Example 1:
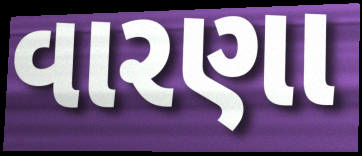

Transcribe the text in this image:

વારણા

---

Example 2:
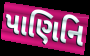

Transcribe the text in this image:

પાણિનિ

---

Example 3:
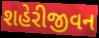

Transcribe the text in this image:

શહેરીજીવન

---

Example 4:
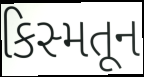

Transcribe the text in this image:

કિસ્મતૂન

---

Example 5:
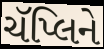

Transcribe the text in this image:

ચૅપ્લિને